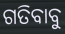
ଗତିବାବୁ